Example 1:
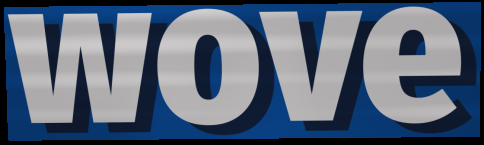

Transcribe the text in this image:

wove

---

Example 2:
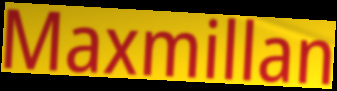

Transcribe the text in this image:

Maxmillan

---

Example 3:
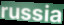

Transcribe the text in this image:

russia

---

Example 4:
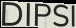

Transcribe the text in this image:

DIPSI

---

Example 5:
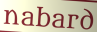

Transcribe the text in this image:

nabard